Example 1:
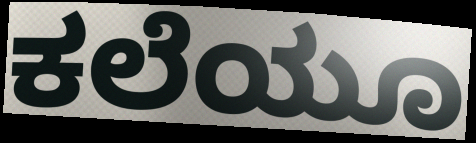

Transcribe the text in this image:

ಕಲೆಯೂ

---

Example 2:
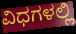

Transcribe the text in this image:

ವಿಧಗಳಲ್ಲಿ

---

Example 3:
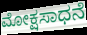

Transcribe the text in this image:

ಮೋಕ್ಷಸಾಧನೆ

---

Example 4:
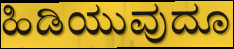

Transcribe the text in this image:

ಹಿಡಿಯುವುದೂ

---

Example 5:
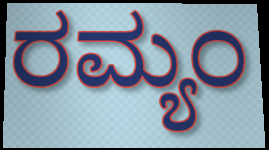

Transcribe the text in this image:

ರಮ್ಯಂ